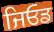
ਜਿਓਡ